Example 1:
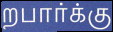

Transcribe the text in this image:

றபார்க்கு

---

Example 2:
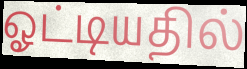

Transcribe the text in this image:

ஓட்டியதில்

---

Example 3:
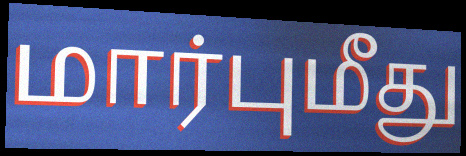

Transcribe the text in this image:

மார்புமீது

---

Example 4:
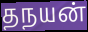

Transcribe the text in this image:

தநயன்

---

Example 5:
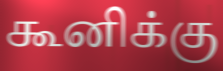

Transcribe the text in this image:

கூனிக்கு